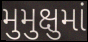
મુમુક્ષુમાં